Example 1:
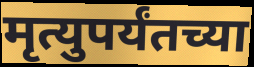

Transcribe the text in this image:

मृत्युपर्यंतच्या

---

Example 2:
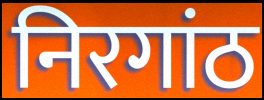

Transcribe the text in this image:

निरगांठ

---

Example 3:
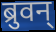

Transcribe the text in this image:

ब्रुवन्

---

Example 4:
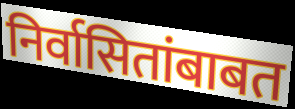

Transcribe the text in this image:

निर्वासितांबाबत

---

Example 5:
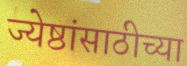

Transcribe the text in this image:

ज्येष्ठांसाठीच्या